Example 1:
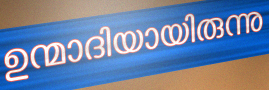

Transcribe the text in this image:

ഉന്മാദിയായിരുന്നു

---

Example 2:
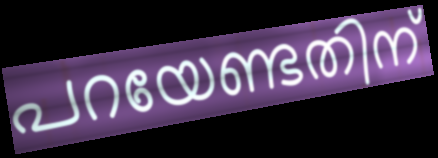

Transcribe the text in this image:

പറയേണ്ടതിന്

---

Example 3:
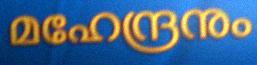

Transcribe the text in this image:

മഹേന്ദ്രനും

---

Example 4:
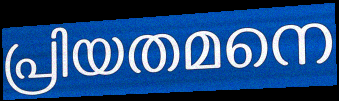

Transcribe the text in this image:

പ്രിയതമനെ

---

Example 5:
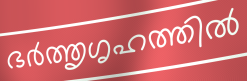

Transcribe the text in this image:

ഭർത്തൃഗൃഹത്തിൽ